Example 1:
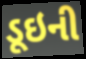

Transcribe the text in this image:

ડૂઇની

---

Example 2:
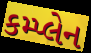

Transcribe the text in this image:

કમ્પ્લેન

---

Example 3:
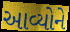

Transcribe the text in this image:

આવ્યોને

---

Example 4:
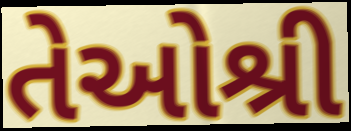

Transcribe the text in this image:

તેઓશ્રી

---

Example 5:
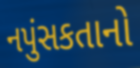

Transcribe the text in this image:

નપુંસકતાનો